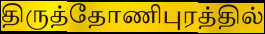
திருத்தோணிபுரத்தில்